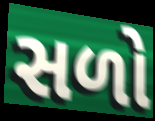
સળો